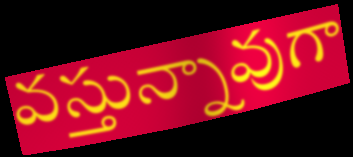
వస్తున్నావుగా